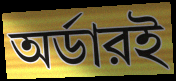
অর্ডারই